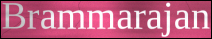
Brammarajan